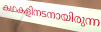
കഥകളിനടനായിരുന്ന